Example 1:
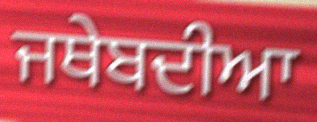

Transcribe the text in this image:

ਜਥੇਬਦੀਆ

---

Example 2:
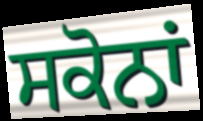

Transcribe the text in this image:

ਸਕੋਨਾਂ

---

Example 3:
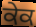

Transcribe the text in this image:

ਕੇਕ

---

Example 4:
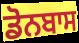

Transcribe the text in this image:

ਡੋਨਬਾਸ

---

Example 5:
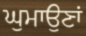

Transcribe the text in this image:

ਘੁਮਾਉਣਾਂ